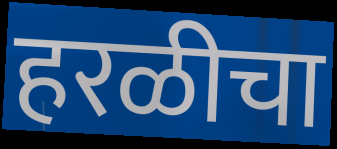
हरळीचा